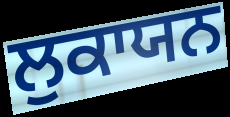
ਲੁਕਾਯਨ